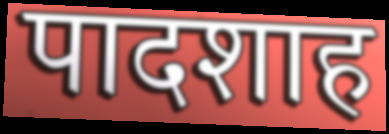
पादशाह